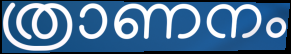
ത്രാണനം